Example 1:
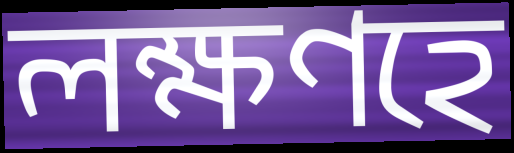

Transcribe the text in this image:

লক্ষণহে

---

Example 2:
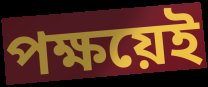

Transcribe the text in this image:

পক্ষয়েই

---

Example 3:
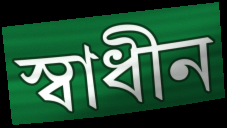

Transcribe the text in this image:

স্ৱাধীন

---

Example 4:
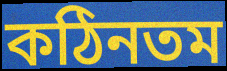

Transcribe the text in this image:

কঠিনতম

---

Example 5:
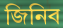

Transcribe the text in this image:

জিনিব